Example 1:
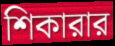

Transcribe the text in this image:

শিকারার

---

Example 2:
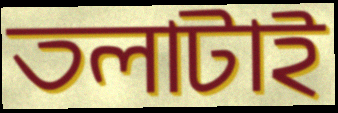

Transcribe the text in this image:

তলাটাই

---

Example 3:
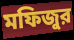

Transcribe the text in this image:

মফিজুর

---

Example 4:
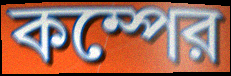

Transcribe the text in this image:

কম্পের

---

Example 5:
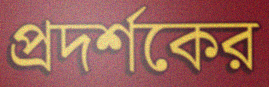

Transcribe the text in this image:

প্রদর্শকের